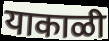
याकाळी